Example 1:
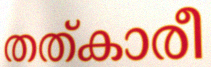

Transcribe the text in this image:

തത്കാരീ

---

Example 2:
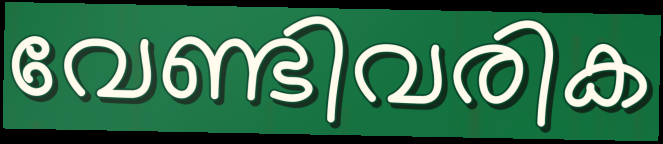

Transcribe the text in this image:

വേണ്ടിവരിക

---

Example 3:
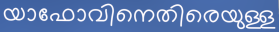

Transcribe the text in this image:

യാഫോവിനെതിരെയുള്ള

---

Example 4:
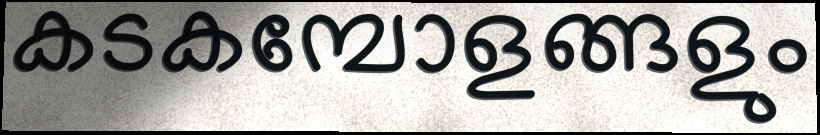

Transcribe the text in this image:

കടകമ്പോളങ്ങളും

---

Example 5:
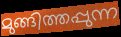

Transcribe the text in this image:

മുങ്ങിത്തപ്പുന്ന